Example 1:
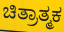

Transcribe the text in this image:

ಚಿತ್ರಾತ್ಮಕ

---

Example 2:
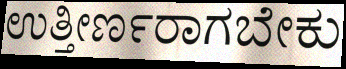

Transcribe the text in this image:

ಉತ್ತೀರ್ಣರಾಗಬೇಕು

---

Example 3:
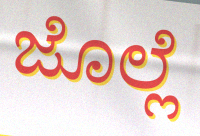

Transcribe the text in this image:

ಜೊಲ್ಲೆ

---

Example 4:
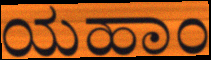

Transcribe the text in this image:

ಯಹಾಂ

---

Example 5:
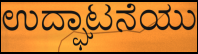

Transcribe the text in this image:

ಉದ್ಘಾಟನೆಯು